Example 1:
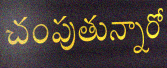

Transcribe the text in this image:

చంపుతున్నారో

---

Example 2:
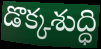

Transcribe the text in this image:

డొక్కశుద్ధి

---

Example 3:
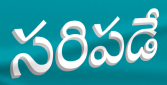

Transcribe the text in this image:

సరిపడే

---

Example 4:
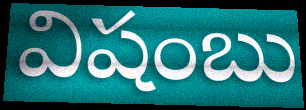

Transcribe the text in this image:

విషంబు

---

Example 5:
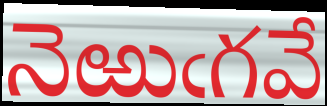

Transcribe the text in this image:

నెఱుఁగవే